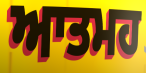
ਆਤਮਹ